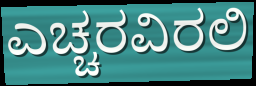
ಎಚ್ಚರವಿರಲಿ